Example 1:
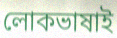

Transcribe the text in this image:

লোকভাষাই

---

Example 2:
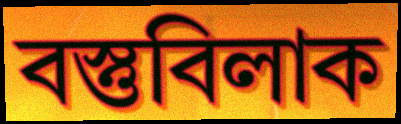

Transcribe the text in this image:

বস্তুবিলাক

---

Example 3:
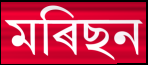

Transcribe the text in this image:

মৰিছন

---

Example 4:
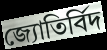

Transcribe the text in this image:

জ্যোতিৰ্বিদ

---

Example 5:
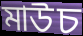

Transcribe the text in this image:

মাউচ